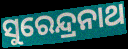
ସୁରେନ୍ଦ୍ରନାଥ